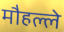
मौहल्ले